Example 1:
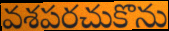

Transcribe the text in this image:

వశపరచుకొను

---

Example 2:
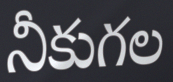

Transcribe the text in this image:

నీకుగల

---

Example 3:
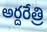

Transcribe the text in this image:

అర్దరేత్రి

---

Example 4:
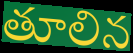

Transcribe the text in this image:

తూలిన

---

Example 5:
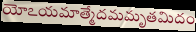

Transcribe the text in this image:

యోఽయమాత్మేదమమృతమిదం